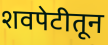
शवपेटीतून